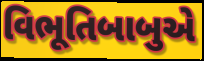
વિભૂતિબાબુએ